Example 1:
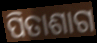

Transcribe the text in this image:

ପିତାଶାଗ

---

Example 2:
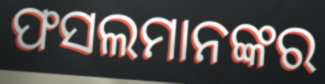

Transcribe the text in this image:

ଫସଲମାନଙ୍କର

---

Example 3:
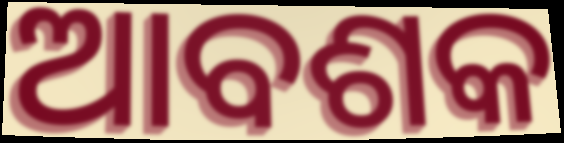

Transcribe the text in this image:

ଆବଶକ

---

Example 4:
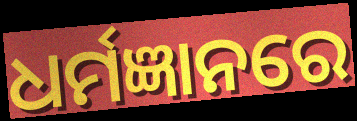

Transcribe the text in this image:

ଧର୍ମଜ୍ଞାନରେ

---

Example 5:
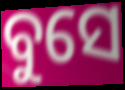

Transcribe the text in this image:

ବୁସେ